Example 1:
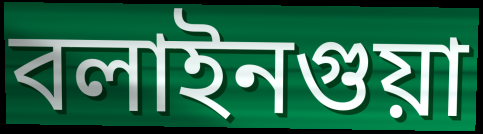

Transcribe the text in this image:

বলাইনগুয়া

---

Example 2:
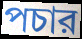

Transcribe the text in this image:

পচার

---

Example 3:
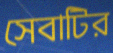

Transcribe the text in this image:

সেবাটির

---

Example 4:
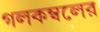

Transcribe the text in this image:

গলকম্বলের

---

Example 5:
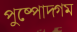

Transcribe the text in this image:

পুষ্পোদ্গম